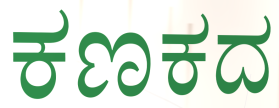
ಕಣಕದ